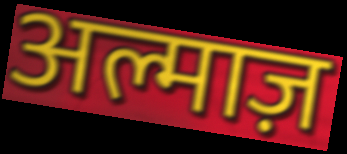
अल्माज़